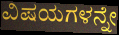
ವಿಷಯಗಳನ್ನೇ